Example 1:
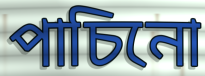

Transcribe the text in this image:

পাচিনো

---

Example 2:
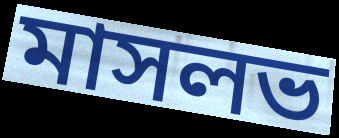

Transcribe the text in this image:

মাসলভ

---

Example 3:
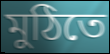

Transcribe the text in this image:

মুঠিতে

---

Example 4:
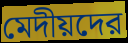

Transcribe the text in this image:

মেদীয়দের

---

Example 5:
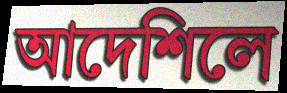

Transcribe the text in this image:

আদেশিলে